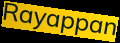
Rayappan